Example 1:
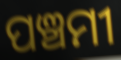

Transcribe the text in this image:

ପଞ୍ଚମୀ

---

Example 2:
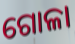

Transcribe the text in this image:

ଗୋଳା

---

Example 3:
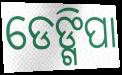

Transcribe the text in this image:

ଡେଙ୍ଗିପା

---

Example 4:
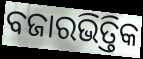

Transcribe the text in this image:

ବଜାରଭିତ୍ତିକ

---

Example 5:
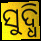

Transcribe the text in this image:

ସୁଦ୍ଧି